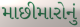
માછીમારોનું